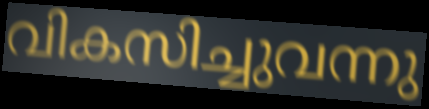
വികസിച്ചുവന്നു